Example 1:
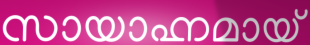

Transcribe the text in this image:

സായാഹ്നമായ്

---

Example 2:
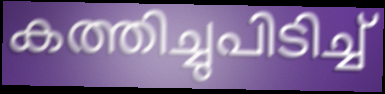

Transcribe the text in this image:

കത്തിച്ചുപിടിച്ച്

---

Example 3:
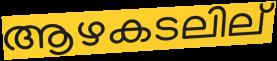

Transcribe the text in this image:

ആഴകടലില്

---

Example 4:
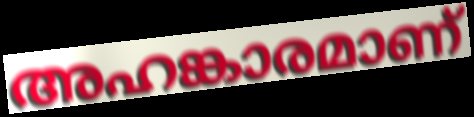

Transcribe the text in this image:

അഹങ്കാരമാണ്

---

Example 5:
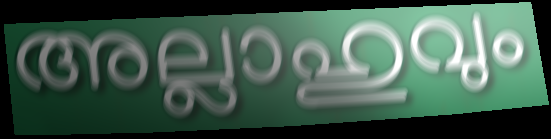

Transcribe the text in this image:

അല്ലാഹുവും